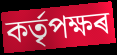
কৰ্তৃপক্ষৰ